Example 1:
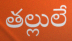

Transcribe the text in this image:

తల్లులే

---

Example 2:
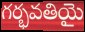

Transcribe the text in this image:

గర్భవతియై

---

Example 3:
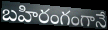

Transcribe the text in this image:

బహిరంగంగానే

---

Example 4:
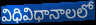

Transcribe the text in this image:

విధివిధానాలలో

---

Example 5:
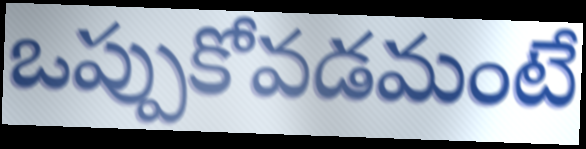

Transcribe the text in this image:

ఒప్పుకోవడమంటే